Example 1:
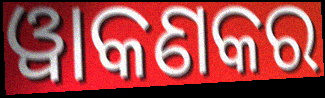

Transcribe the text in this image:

ୱାକଣକର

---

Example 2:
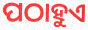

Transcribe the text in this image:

ପଠାହୁଏ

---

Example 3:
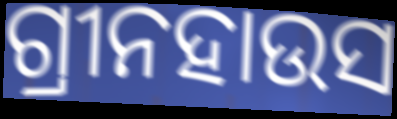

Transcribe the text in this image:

ଗ୍ରୀନହାଉସ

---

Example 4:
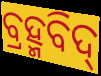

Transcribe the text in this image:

ବ୍ରହ୍ମବିଦ୍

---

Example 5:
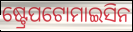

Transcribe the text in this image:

ଷ୍ଟ୍ରେପଟୋମାଇସିନ